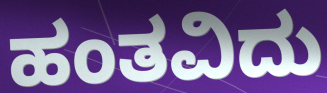
ಹಂತವಿದು